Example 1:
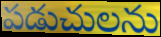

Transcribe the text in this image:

పడుచులను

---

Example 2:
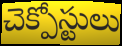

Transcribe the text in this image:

చెక్పోస్టులు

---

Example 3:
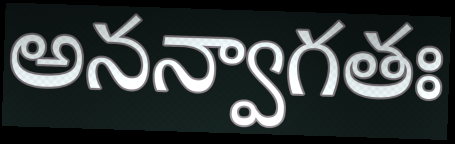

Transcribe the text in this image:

అనన్వాగతః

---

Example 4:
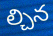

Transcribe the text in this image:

ల్చిన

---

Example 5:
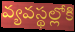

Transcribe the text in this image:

వ్యవస్థల్లోకి